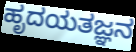
ಹೃದಯತಜ್ಞನ